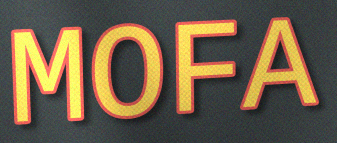
MOFA